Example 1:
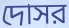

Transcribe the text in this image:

দোসর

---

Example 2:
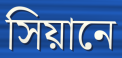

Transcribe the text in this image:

সিয়ানে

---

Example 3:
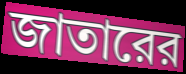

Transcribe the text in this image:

জাতারের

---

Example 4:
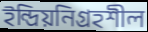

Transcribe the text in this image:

ইন্দ্রিয়নিগ্রহশীল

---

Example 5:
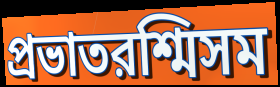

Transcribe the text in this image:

প্রভাতরশ্মিসম